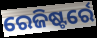
ରେଜିଷ୍ଟର୍ରେ